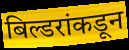
बिल्डरांकडून